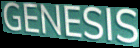
GENESIS